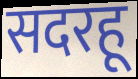
सदरहू